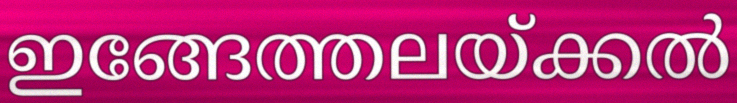
ഇങ്ങേത്തലയ്ക്കൽ